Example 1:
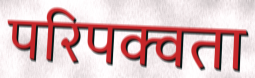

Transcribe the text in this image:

परिपक्वता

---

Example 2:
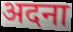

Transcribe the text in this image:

अदना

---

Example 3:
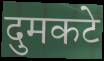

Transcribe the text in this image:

दुमकटे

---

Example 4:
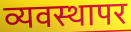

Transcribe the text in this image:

व्यवस्थापर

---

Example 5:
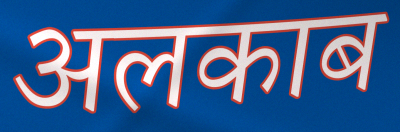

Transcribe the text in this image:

अलकाब